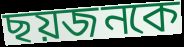
ছয়জনকে